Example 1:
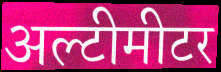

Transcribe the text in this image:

अल्टीमीटर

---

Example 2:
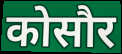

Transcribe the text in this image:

कोसौर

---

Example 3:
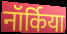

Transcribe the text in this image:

नॉर्किया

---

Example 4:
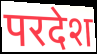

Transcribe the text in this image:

परदेश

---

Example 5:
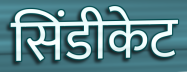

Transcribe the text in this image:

सिंडीकेट